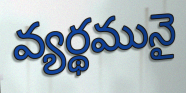
వ్యర్థమునై